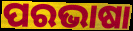
ପରଭାଷା